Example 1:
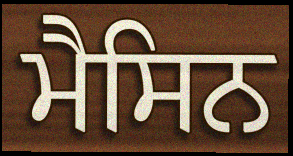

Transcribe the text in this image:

ਮੈਸਿਨ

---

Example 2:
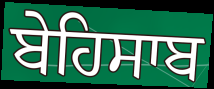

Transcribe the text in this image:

ਬੇਹਿਸਾਬ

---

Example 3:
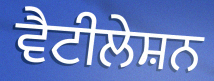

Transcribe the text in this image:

ਵੈਟੀਲੇਸ਼ਨ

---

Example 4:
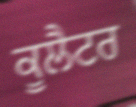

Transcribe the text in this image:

ਕੂਲੈਟਰ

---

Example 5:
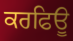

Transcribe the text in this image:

ਕਰਫਿਊ